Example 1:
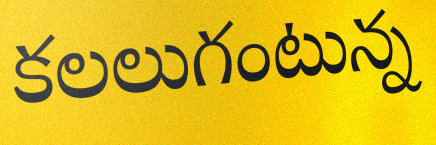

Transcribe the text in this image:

కలలుగంటున్న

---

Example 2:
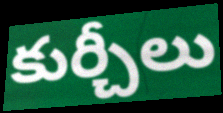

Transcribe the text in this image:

కుర్చీలు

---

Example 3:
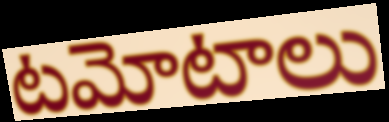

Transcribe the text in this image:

టమోటాలు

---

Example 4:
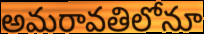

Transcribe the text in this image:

అమరావతిలోనూ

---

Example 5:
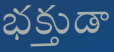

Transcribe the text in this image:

భక్తుడా